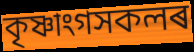
কৃষ্ণাংগসকলৰ